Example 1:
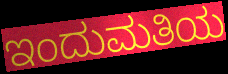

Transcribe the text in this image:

ಇಂದುಮತಿಯ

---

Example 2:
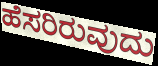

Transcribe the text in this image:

ಹೆಸರಿರುವುದು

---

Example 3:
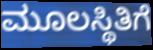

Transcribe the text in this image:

ಮೂಲಸ್ಥಿತಿಗೆ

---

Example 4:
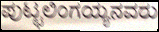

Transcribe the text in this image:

ಪುಟ್ಟಲಿಂಗಯ್ಯನವರು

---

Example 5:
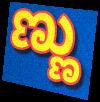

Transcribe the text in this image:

ಣ್ಣು